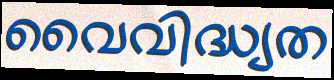
വൈവിദ്ധ്യത